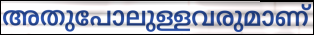
അതുപോലുള്ളവരുമാണ്